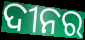
ଦୀନର